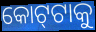
କୋଟ୍‌ଟାକୁ